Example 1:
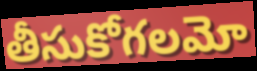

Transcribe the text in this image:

తీసుకోగలమో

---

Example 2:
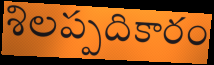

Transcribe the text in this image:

శిలప్పదికారం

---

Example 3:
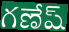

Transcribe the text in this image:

గణేష్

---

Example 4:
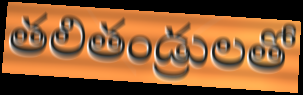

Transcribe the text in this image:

తలితండ్రులతో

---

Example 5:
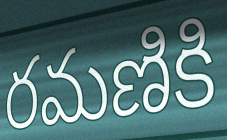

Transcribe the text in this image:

రమణికి